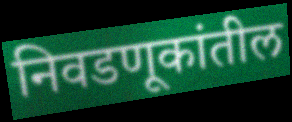
निवडणूकांतील